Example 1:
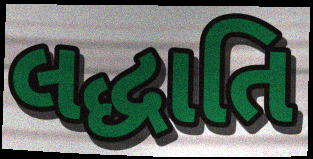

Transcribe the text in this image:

લદ્ધાતિ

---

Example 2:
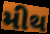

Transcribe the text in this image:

મીથ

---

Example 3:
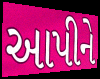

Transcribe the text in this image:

આપીને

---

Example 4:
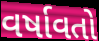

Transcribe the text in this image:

વર્ષાવતો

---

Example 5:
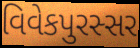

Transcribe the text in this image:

વિવેકપુરસ્સર